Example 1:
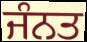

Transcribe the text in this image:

ਜੰਨਤ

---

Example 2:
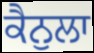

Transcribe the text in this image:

ਕੈਨੁਲਾ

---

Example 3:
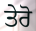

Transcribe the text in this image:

ਤੇਰੋ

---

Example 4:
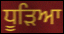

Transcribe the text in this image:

ਧੂੜਿਆ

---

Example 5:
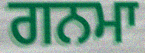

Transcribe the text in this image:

ਗਨਮਾ